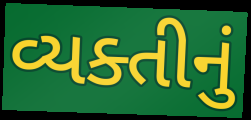
વ્યક્તીનું